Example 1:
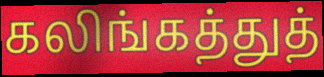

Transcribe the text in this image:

கலிங்கத்துத்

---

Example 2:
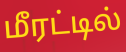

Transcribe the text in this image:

மீரட்டில்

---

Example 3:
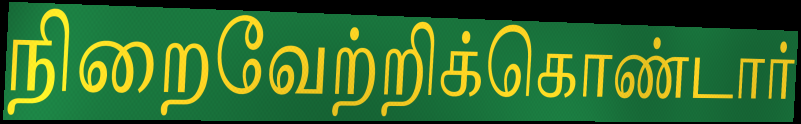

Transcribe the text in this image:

நிறைவேற்றிக்கொண்டார்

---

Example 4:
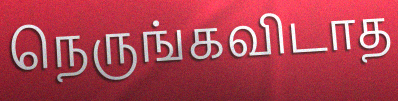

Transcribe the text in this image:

நெருங்கவிடாத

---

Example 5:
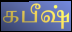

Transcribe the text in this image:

கபீஷ்